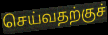
செய்வதற்குச்